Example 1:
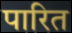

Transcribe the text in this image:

पारित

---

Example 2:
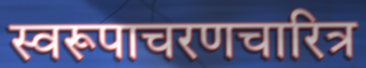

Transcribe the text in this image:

स्वरूपाचरणचारित्र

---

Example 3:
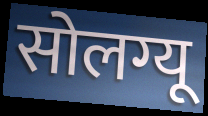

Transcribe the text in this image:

सोलग्यू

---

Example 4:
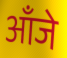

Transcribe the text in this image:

आँजे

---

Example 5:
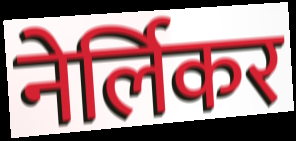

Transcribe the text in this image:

नेर्लिकर